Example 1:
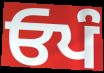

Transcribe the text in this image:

ਓਪੰ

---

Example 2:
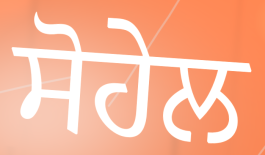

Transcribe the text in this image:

ਸੋਹੇਲ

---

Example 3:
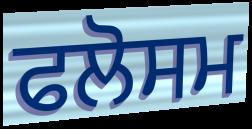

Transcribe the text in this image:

ਫਲੋਸਮ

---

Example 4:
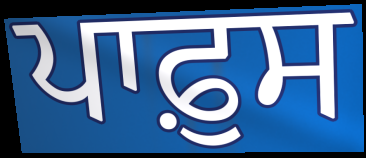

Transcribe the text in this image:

ਪਾਫ਼ੁਸ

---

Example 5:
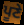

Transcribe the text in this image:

ਪੂਣੇ